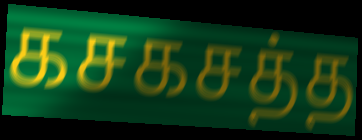
கசகசத்த